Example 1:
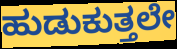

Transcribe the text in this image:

ಹುಡುಕುತ್ತಲೇ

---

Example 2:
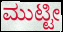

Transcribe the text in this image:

ಮುಟ್ಟೀ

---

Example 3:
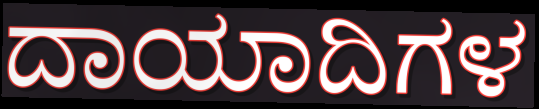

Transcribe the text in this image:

ದಾಯಾದಿಗಳ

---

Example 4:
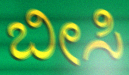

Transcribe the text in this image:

ಬೀಸಿ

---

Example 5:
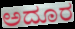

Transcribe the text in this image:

ಅದೂರ